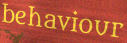
behaviour